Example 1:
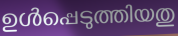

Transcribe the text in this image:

ഉൾപ്പെടുത്തിയതു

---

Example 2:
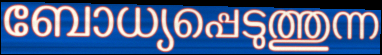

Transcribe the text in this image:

ബോധ്യപ്പെടുത്തുന്ന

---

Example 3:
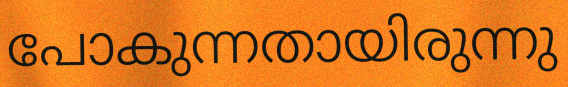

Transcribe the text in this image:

പോകുന്നതായിരുന്നു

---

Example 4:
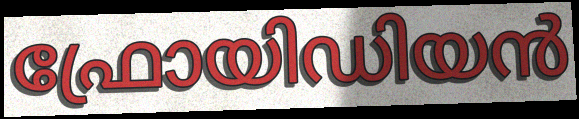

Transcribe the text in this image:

ഫ്രോയിഡിയൻ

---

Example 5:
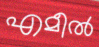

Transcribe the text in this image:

എമീൽ